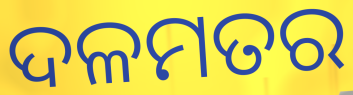
ଦଳମତର